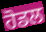
ਹੋਡਲ